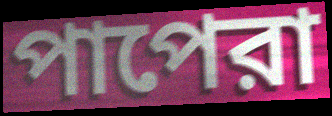
পাপেরা